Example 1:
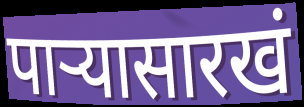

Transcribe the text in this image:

पाऱ्यासारखं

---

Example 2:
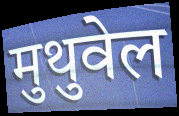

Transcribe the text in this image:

मुथुवेल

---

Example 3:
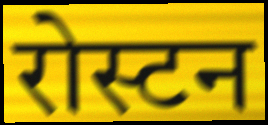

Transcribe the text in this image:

रोस्टन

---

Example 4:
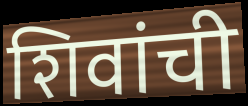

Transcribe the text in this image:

शिवांची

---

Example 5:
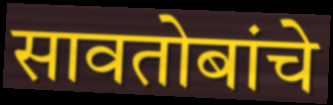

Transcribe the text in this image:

सावतोबांचे